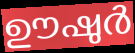
ഊഷുർ